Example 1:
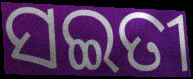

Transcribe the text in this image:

ସଇତୀ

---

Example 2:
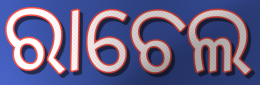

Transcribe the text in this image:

ରାଚେଲ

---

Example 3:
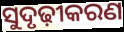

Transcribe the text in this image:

ସୁଦୃଢ଼ୀକରଣ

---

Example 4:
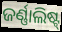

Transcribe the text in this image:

ଜର୍ଣ୍ଣାଲିଷ୍ଟ୍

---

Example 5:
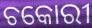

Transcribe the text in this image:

ଚକୋରୀ